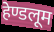
हेण्डलूम